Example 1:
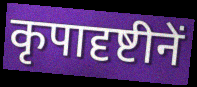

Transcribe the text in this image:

कृपादृष्टीनें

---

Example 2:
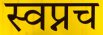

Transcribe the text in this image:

स्वप्नच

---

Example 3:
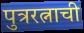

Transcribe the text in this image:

पुत्ररत्नाची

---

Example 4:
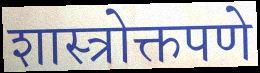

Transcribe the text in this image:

शास्त्रोक्तपणे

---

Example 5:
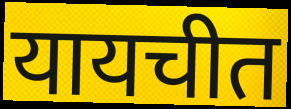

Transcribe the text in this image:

यायचीत